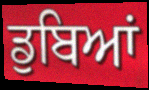
ਡੁਬਿਆਂ